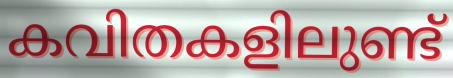
കവിതകളിലുണ്ട്